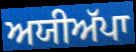
ਅਯੀਅੱਪਾ